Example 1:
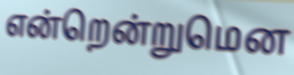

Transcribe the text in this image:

என்றென்றுமென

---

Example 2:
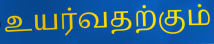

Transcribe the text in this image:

உயர்வதற்கும்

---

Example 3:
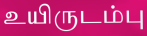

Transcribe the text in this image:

உயிருடம்பு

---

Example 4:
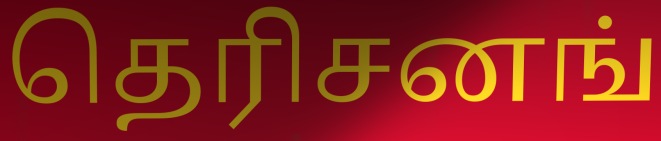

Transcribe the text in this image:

தெரிசனங்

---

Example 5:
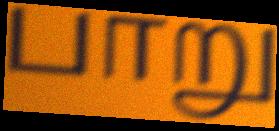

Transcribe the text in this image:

பாறு